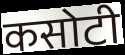
कसोटी